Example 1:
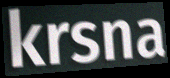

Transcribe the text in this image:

krsna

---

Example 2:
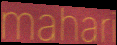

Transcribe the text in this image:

mahari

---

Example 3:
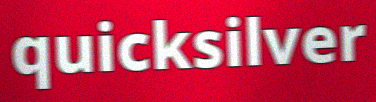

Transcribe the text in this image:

quicksilver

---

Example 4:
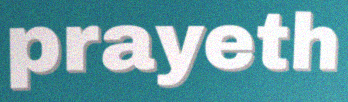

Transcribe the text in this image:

prayeth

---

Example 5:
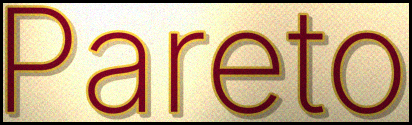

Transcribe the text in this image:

Pareto